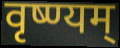
वृष्ण्यम्